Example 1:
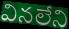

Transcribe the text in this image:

వినలేని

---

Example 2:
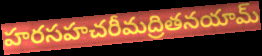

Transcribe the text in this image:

హరసహచరీమద్రితనయామ్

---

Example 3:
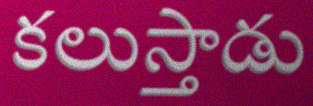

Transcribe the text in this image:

కలుస్తాడు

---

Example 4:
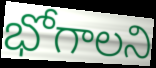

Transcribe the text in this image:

భోగాలని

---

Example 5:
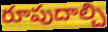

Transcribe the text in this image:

రూపుదాల్చి